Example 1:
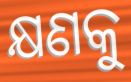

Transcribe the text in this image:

କ୍ଷଣକୁ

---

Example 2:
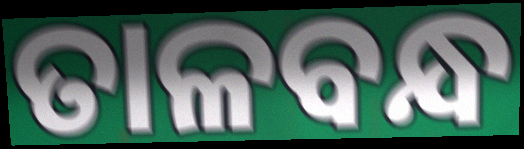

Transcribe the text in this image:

ତାଳବନ୍ଧ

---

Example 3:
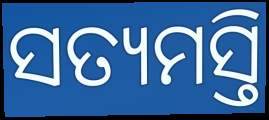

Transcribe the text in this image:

ସତ୍ୟମସ୍ତି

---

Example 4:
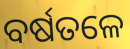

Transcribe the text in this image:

ବର୍ଷତଳେ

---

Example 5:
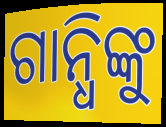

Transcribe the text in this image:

ଗାନ୍ଧିଙ୍କୁ